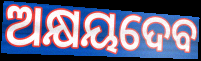
ଅକ୍ଷୟଦେବ